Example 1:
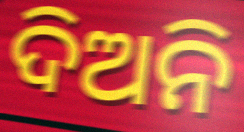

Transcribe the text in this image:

ଦିଅନି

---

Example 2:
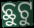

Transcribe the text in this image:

ଛୁଟୁ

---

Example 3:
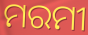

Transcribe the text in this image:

ମରମୀ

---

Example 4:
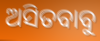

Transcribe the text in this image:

ଅସିତବାବୁ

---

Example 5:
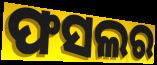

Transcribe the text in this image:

ଫସଲର